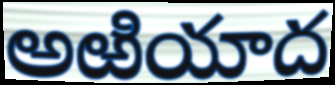
అఱియాద